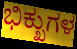
ಭಿಕ್ಖುಗಳ